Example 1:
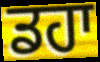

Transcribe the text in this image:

ਡਹਾ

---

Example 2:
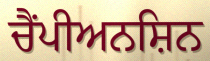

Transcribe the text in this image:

ਚੈਂਪੀਅਨਸ਼ਿਨ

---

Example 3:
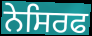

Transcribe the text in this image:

ਨੇਸਿਰਫ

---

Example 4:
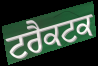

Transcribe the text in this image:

ਟਰੈਕਟਕ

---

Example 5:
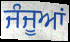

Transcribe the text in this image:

ਜੰਜੂਆਂ